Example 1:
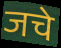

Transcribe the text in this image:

जचे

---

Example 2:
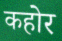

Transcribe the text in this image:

कहोर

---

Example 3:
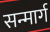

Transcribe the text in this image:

सन्मार्ग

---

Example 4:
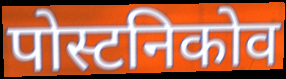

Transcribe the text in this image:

पोस्टनिकोव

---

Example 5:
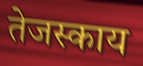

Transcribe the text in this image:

तेजस्काय